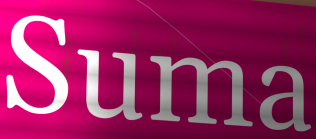
Suma